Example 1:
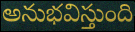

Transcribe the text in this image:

అనుభవిస్తుంది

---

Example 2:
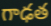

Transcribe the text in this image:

గాఢత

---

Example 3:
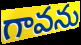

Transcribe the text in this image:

గావను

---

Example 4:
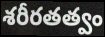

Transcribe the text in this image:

శరీరతత్వం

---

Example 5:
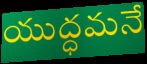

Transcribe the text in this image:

యుద్ధమనే